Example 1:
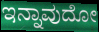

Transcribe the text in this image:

ಇನ್ನಾವುದೋ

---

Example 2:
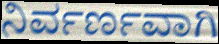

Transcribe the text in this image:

ನಿರ್ವರ್ಣವಾಗಿ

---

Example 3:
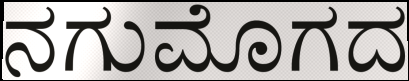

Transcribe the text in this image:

ನಗುಮೊಗದ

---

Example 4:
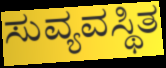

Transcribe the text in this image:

ಸುವ್ಯವಸ್ಥಿತ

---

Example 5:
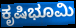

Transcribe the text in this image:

ಕೃಷಿಭೂಮಿ